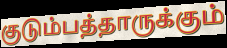
குடும்பத்தாருக்கும்